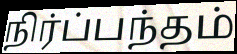
நிர்ப்பந்தம்